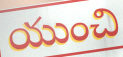
యుంచి